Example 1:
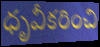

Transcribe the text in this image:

ధృవీకరించి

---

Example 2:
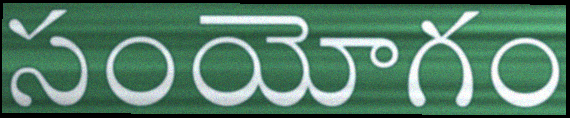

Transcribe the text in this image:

సంయోగం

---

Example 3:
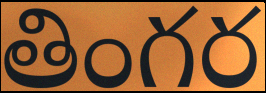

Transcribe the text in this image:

తింగర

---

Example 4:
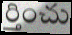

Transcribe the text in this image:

ర్తించు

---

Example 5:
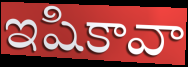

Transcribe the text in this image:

ఇషికావా